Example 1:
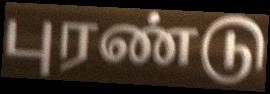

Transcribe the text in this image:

புரண்டு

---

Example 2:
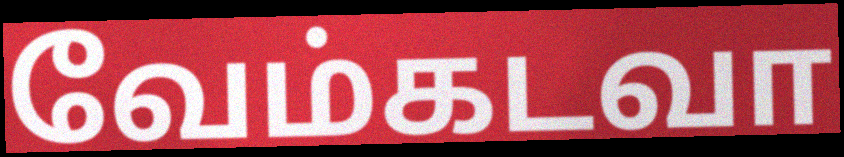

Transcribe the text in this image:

வேம்கடவா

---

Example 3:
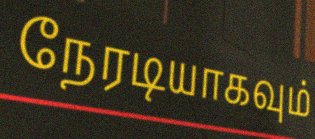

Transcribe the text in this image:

நேரடியாகவும்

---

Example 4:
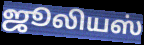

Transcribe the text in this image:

ஜூலியஸ்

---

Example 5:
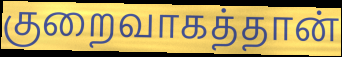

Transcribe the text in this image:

குறைவாகத்தான்